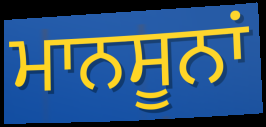
ਮਾਨਸੂਨਾਂ